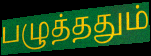
பழுத்ததும்